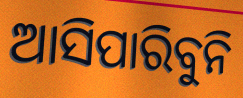
ଆସିପାରିବୁନି